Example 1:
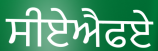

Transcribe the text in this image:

ਸੀਏਐਫਏ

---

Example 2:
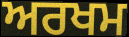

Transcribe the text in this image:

ਅਰਖਮ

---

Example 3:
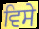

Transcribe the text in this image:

ਵਿਸੇ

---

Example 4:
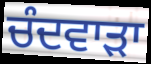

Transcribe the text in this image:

ਚੰਦਵਾੜਾ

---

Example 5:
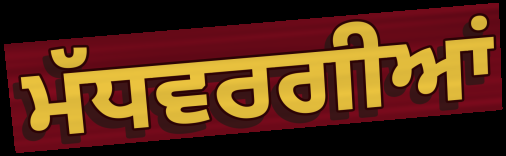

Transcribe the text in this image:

ਮੱਧਵਰਗੀਆਂ